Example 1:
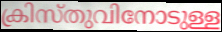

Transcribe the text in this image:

ക്രിസ്തുവിനോടുള്ള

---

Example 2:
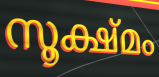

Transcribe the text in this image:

സൂക്ഷ്‌മം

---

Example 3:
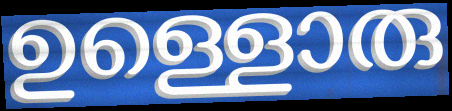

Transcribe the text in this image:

ഉള്ളൊരു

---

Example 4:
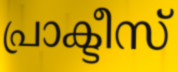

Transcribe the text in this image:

പ്രാക്ടീസ്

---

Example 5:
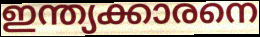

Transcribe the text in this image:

ഇന്ത്യക്കാരനെ